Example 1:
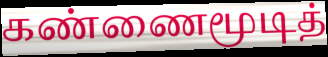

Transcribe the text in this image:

கண்ணைமூடித்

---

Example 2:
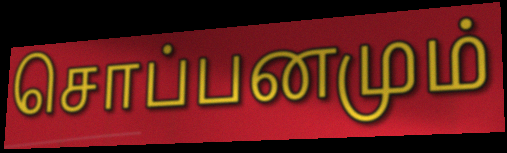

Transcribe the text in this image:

சொப்பனமும்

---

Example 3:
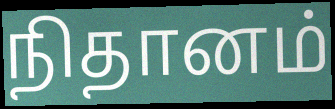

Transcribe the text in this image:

நிதானம்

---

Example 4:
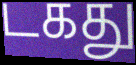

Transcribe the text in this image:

டகது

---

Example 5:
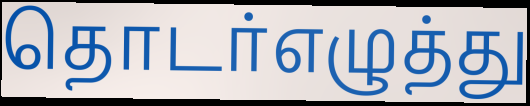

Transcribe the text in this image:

தொடர்எழுத்து